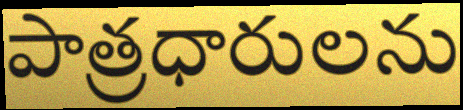
పాత్రధారులను